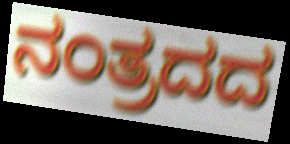
ನಂತ್ರದದ